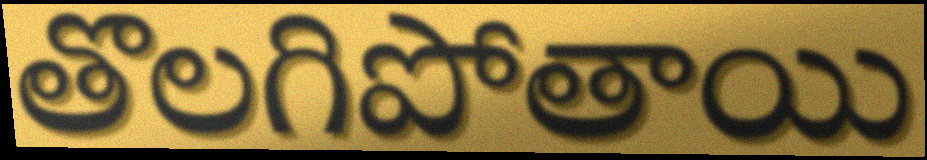
తొలగిపోతాయి